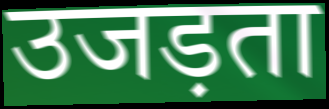
उजड़ता